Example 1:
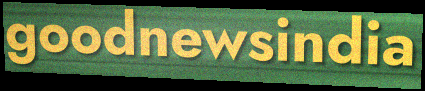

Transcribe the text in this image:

goodnewsindia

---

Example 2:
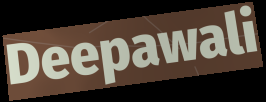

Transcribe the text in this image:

Deepawali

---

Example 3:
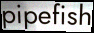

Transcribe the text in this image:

pipefish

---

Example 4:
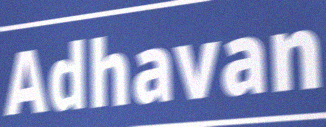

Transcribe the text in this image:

Adhavan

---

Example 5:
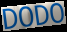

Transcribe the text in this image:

DODO